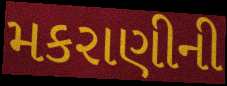
મકરાણીની